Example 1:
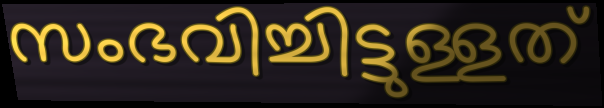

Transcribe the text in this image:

സംഭവിച്ചിട്ടുള്ളത്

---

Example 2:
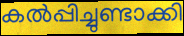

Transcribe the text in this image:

കൽപ്പിച്ചുണ്ടാക്കി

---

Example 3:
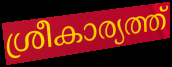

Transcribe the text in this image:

ശ്രീകാര്യത്ത്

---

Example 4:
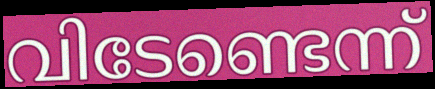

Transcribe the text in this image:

വിടേണ്ടെന്ന്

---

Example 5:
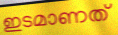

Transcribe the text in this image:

ഇടമാണത്